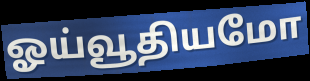
ஓய்வூதியமோ